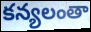
కన్యలంతా